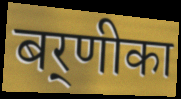
बर्णीका